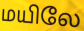
மயிலே